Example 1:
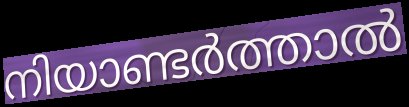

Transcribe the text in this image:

നിയാണ്ടർത്താൽ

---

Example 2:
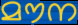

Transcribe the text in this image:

മൗന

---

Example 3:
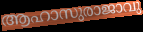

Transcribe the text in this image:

ആഹാസുരാജാവു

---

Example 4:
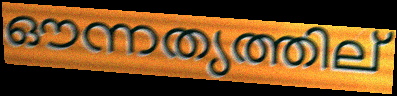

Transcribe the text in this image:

ഔന്നത്യത്തില്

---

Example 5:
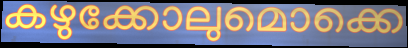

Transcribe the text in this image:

കഴുക്കോലുമൊക്കെ